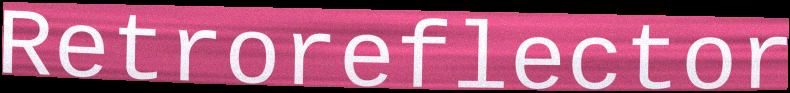
Retroreflector